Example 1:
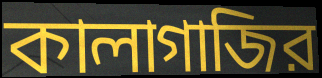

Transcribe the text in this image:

কালাগাজির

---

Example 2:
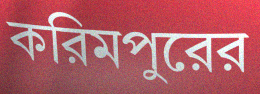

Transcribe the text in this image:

করিমপুরের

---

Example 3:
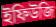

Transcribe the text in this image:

ইফিউজি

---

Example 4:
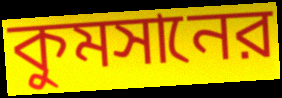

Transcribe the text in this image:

কুমসানের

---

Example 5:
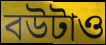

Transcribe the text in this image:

বউটাও